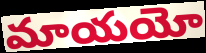
మాయయో